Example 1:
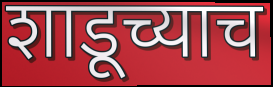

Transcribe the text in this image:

शाडूच्याच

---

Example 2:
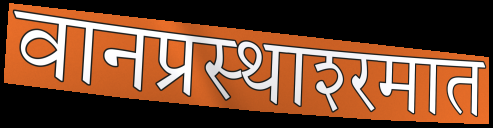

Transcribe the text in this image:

वानप्रस्थाश्रमात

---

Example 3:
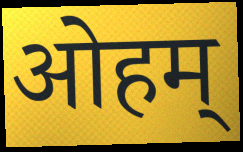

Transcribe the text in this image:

ओहम्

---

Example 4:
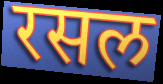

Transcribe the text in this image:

रसल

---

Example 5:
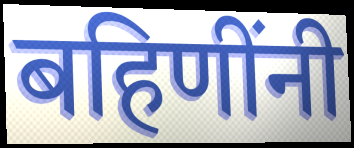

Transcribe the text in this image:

बहिणींनी